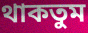
থাকতুম